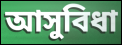
আসুবিধা